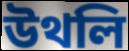
উথলি